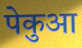
पेकुआ